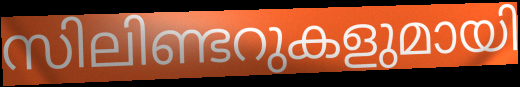
സിലിണ്ടറുകളുമായി